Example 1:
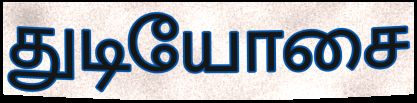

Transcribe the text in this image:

துடியோசை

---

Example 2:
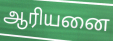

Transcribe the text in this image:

ஆரியனை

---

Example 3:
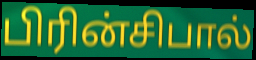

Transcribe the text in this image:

பிரின்சிபால்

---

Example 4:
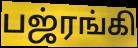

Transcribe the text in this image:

பஜ்ரங்கி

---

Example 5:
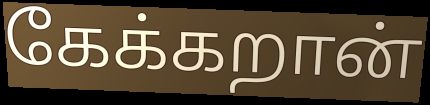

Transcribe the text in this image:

கேக்கறான்